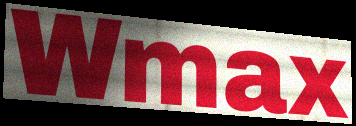
Wmax